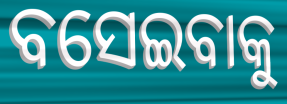
ବସେଇବାକୁ